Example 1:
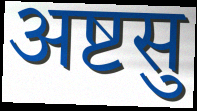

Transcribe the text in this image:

अष्टसु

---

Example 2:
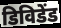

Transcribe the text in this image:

डिविडेंड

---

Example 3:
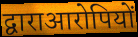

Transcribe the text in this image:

द्वाराआरोपियों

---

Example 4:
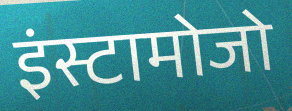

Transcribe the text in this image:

इंस्टामोजो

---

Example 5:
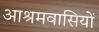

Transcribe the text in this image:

आश्रमवासियों